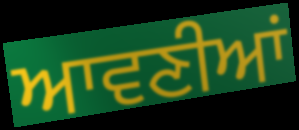
ਆਵਣੀਆਂ